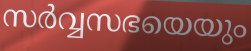
സർവ്വസഭയെയും